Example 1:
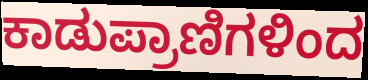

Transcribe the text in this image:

ಕಾಡುಪ್ರಾಣಿಗಳಿಂದ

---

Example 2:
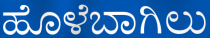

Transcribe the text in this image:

ಹೊಳೆಬಾಗಿಲು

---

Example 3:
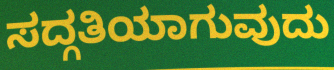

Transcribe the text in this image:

ಸದ್ಗತಿಯಾಗುವುದು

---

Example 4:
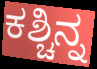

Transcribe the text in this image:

ಕಶ್ಚಿನ್ನ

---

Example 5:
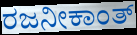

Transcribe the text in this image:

ರಜನೀಕಾಂತ್